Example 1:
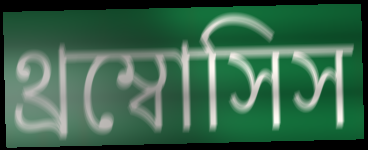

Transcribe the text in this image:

থ্রম্বোসিস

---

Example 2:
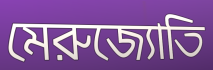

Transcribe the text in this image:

মেরুজ্যোতি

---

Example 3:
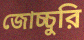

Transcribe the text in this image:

জোচ্চুরি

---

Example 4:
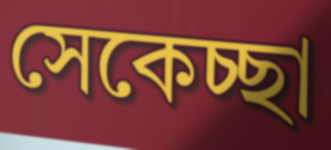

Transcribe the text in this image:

সেকেচ্ছা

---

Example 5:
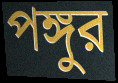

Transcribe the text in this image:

পঙ্গুর